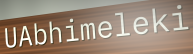
UAbhimeleki